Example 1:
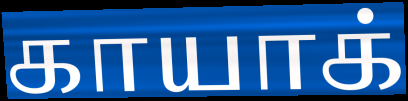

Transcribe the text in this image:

காயாக்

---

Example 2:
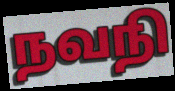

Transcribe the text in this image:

நவநி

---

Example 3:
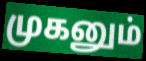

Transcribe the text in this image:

முகனும்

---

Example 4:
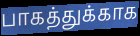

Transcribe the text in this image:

பாகத்துக்காக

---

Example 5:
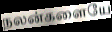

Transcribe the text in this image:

நலன்களையே